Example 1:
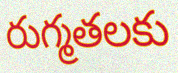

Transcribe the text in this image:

రుగ్మతలకు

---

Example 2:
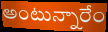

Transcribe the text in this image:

అంటున్నారేం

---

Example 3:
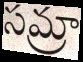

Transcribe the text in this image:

సమ్రా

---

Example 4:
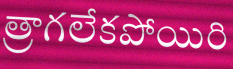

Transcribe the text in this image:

త్రాగలేకపోయిరి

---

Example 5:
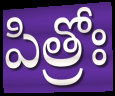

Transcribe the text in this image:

పిత్రోః